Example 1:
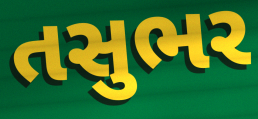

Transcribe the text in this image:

તસુભર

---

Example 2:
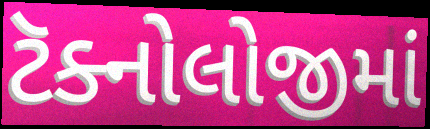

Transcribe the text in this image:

ટૅક્નોલોજીમાં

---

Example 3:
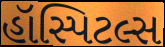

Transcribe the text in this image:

હૉસ્પિટલ્સ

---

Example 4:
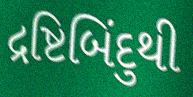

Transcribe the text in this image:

દ્રષ્ટિબિંદુથી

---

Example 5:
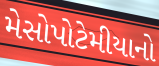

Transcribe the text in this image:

મેસોપોટેમીયાનો